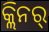
କ୍ଲିନର୍